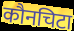
कौनचिटा